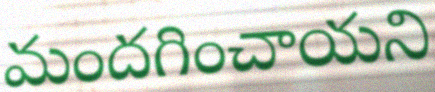
మందగించాయని